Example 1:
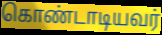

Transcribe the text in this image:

கொண்டாடியவர்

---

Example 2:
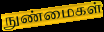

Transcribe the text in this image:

நுண்மைகள்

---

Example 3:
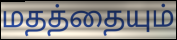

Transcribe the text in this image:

மதத்தையும்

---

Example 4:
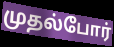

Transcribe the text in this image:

முதல்போர்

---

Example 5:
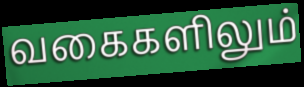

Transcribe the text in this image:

வகைகளிலும்